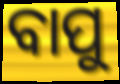
ବାପୁ